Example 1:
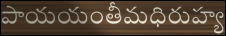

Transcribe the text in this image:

పాయయంతీమధిరుహ్య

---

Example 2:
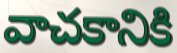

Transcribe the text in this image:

వాచకానికి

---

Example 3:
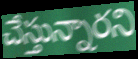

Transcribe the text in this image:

చేస్తున్నారని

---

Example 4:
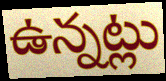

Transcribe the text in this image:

ఉన్నట్లు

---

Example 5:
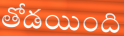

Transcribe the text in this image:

తోడయింది